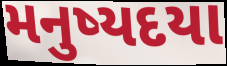
મનુષ્યદયા